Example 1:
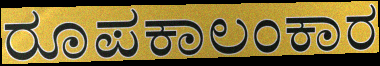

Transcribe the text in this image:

ರೂಪಕಾಲಂಕಾರ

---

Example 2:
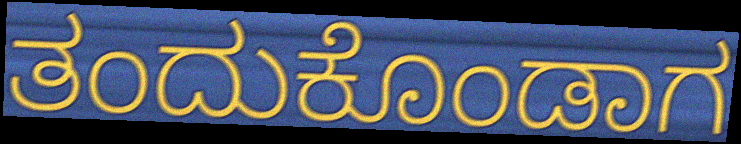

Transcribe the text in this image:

ತಂದುಕೊಂಡಾಗ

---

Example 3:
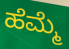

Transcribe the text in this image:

ಹೆಮ್ಮೆ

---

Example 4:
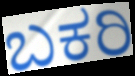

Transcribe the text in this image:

ಬಕರಿ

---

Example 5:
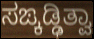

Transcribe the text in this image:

ಸಙ್ಕಡ್ಢಿತ್ವಾ